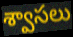
శ్వాసలు